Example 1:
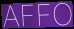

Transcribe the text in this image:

AFFO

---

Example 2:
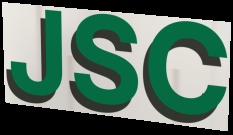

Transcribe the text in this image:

JSC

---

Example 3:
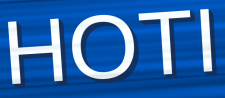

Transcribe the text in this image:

HOTI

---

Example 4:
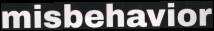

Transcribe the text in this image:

misbehavior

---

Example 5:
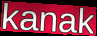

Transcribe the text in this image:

kanak